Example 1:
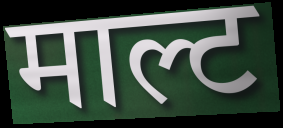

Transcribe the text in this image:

माल्ट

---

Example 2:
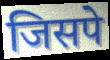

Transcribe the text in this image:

जिसपे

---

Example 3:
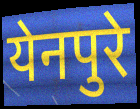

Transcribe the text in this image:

येनपुरे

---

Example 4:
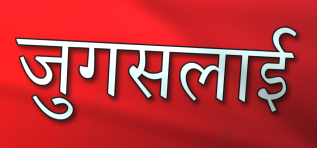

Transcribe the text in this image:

जुगसलाई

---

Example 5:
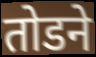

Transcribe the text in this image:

तोडने